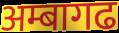
अम्बागढ